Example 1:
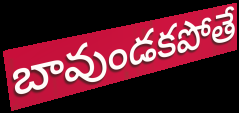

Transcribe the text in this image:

బావుండకపోతే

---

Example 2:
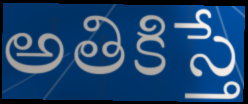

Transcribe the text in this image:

అతికిస్తే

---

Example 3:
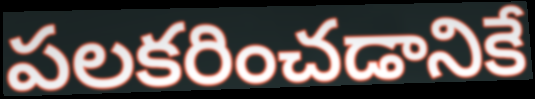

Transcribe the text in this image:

పలకరించడానికే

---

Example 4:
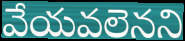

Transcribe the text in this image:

వేయవలెనని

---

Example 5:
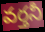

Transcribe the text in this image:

వర్తనీ